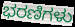
ಭರಣಿಗಳು